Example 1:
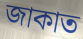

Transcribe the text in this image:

জাকাত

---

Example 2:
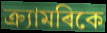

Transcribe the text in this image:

ক্ৰ্যামৰিকে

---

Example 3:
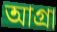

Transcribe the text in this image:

আগ্ৰা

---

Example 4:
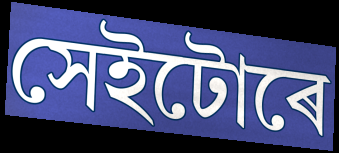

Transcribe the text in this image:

সেইটোৰে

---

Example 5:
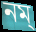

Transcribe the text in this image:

নম্